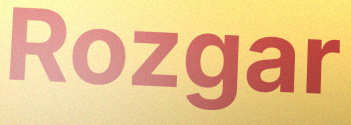
Rozgar